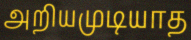
அறியமுடியாத